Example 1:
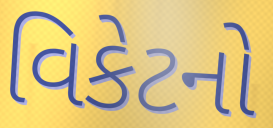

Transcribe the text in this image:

વિકેટનો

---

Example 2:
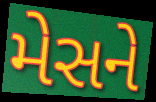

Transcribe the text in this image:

મેસને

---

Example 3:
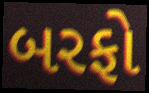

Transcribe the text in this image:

બરફો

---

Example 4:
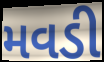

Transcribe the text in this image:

મવડી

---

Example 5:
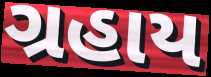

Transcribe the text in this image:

ગ્રહાય